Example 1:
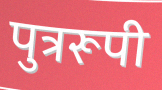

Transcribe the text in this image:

पुत्ररूपी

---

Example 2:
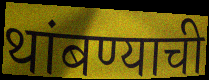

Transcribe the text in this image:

थांबण्याची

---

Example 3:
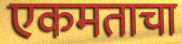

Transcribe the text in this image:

एकमताचा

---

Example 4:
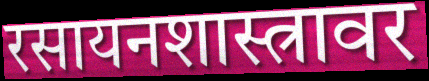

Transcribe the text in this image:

रसायनशास्त्रावर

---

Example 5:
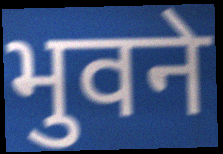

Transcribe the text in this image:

भुवने